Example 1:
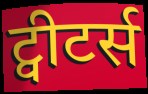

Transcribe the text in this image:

ट्वीटर्स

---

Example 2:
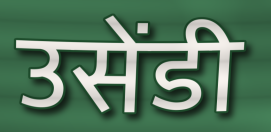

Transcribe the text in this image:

उसेंडी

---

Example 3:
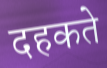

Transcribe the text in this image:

दहकते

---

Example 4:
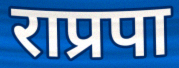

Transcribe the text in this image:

राप्रपा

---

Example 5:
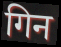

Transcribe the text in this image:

गिन